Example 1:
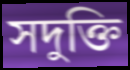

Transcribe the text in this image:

সদুক্তি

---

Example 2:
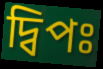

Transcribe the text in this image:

দ্বিপঃ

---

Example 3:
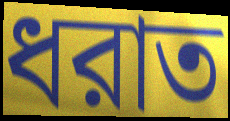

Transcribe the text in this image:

ধরাত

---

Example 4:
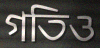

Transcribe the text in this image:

গতিও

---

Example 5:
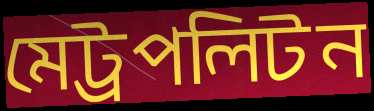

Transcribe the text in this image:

মেট্রপলিটন